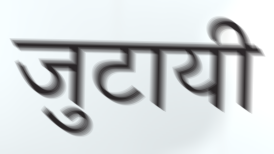
जुटायी